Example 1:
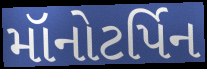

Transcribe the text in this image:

મૉનોટર્પિન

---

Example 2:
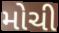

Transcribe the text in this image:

મોચી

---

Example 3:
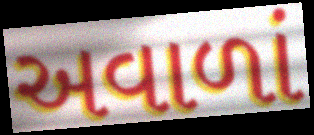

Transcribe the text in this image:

અવાળાં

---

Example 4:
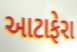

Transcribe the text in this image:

આટાફેરા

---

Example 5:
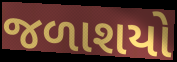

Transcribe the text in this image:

જળાશયો